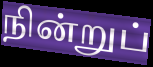
நின்றுப்